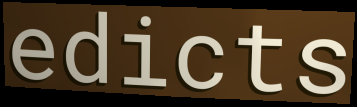
edicts